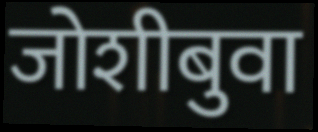
जोशीबुवा